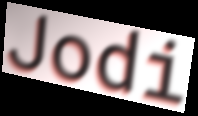
Jodi